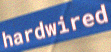
hardwired